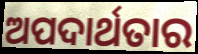
ଅପଦାର୍ଥତାର